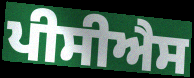
ਪੀਸੀਐਸ